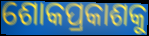
ଶୋକପ୍ରକାଶକୁ